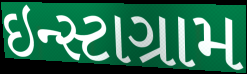
ઇન્સ્ટાગ્રામ